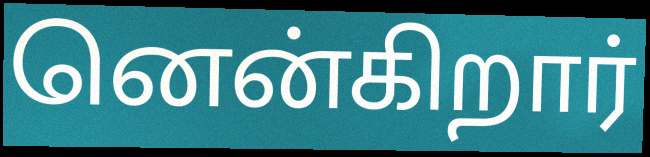
னென்கிறார்